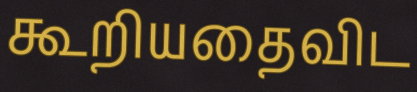
கூறியதைவிட